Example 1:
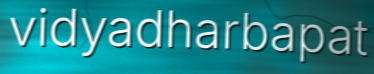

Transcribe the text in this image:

vidyadharbapat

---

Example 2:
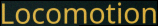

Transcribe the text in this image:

Locomotion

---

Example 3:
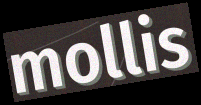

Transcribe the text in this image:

mollis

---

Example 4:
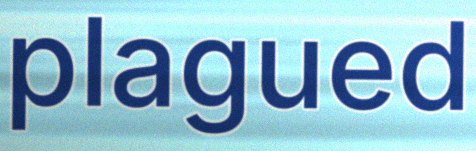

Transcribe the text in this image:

plagued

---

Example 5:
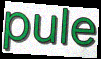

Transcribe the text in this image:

pule